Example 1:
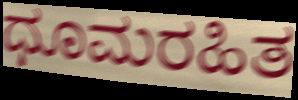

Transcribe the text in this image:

ಧೂಮರಹಿತ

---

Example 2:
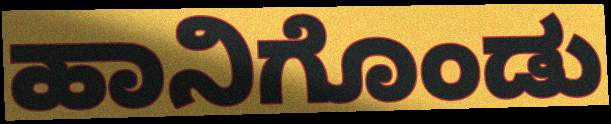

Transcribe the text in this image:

ಹಾನಿಗೊಂಡು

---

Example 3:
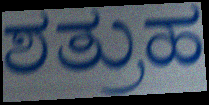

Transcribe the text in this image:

ಶತ್ರುಹ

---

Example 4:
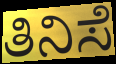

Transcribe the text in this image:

ತಿನಿಸೆ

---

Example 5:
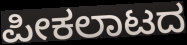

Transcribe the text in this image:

ಪೀಕಲಾಟದ